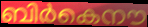
ബിർകെനൗ